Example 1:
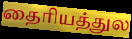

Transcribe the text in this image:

தைரியத்துல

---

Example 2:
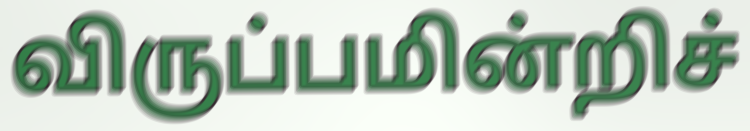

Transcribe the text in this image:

விருப்பமின்றிச்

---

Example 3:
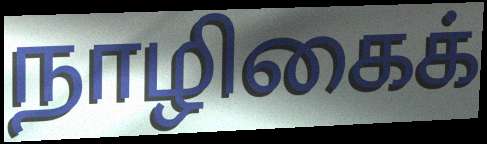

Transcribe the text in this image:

நாழிகைக்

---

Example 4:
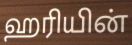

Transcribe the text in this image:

ஹரியின்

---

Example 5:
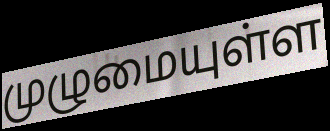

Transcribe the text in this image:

முழுமையுள்ள